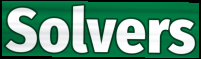
Solvers